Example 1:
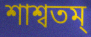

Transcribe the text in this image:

শাশ্বতম্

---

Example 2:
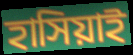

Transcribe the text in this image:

হাসিয়াই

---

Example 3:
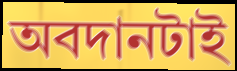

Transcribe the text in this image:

অবদানটাই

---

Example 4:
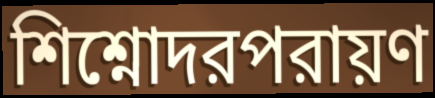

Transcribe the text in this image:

শিশ্নোদরপরায়ণ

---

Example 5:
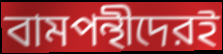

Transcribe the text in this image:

বামপন্থীদেরই